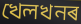
খেলখনৰ